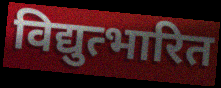
विद्युत्भारित